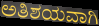
ಅತಿಶಯವಾಗಿ